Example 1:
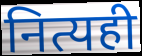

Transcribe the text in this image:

नित्यही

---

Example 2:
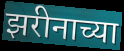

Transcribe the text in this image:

झरीनाच्या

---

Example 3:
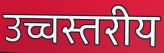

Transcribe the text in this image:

उच्चस्तरीय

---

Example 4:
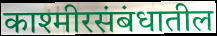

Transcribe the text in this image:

काश्मीरसंबंधातील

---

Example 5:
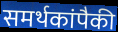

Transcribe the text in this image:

समर्थकांपैकी